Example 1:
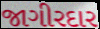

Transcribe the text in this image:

જાગીરદાર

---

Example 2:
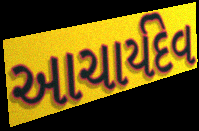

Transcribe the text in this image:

આચાર્યદેવ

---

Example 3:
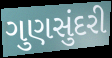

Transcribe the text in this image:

ગુણસુંદરી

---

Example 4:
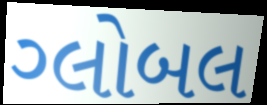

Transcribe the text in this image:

ગ્લોબલ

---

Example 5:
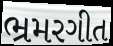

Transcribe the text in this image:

ભ્રમરગીત